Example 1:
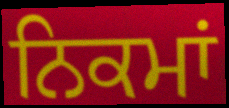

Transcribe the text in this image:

ਨਿਕਮਾਂ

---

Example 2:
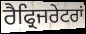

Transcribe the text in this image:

ਰੈਫ੍ਰਿਜਰੇਟਰਾਂ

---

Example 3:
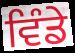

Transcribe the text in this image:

ਵਿੰਡੇ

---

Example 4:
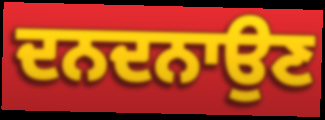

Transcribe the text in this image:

ਦਨਦਨਾਉਣ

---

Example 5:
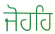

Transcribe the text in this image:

ਜੋਹਹਿ